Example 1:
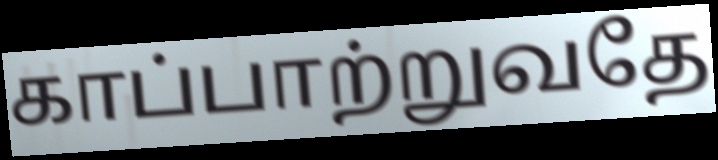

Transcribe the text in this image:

காப்பாற்றுவதே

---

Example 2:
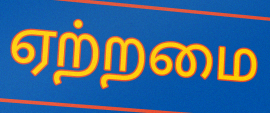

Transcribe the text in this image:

ஏற்றமை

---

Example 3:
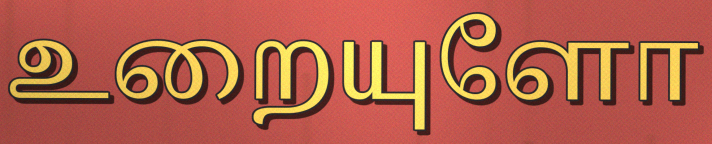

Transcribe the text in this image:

உறையுளோ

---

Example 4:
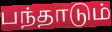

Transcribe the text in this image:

பந்தாடும்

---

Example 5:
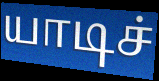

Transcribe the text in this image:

யாடிச்